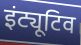
इंट्यूटिव